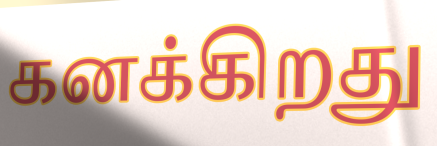
கனக்கிறது